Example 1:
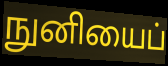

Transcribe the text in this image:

நுனியைப்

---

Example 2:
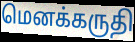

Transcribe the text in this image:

மெனக்கருதி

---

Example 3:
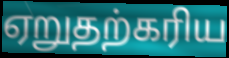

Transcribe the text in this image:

ஏறுதற்கரிய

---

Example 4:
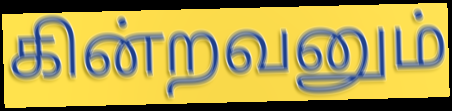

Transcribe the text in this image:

கின்றவனும்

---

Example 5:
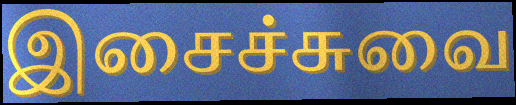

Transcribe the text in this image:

இசைச்சுவை